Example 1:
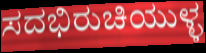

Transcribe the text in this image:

ಸದಭಿರುಚಿಯುಳ್ಳ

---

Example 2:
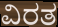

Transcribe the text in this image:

ವಿರತ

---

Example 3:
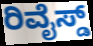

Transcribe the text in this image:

ರಿವೈಸ್ಡ್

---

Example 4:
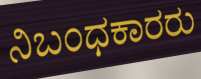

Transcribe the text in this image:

ನಿಬಂಧಕಾರರು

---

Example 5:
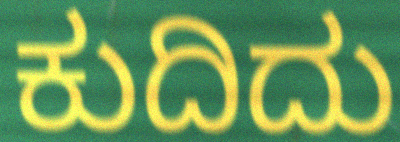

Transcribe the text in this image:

ಕುದಿದು